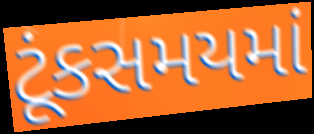
ટૂંકસમયમાં